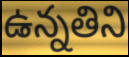
ఉన్నతిని